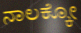
ನಾಲಕ್ಕೋ